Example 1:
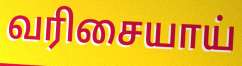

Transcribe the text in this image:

வரிசையாய்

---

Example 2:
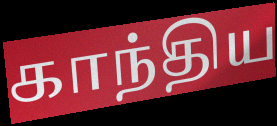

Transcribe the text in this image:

காந்திய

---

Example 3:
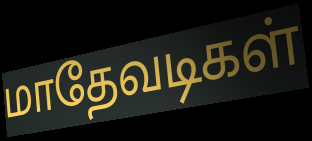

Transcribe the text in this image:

மாதேவடிகள்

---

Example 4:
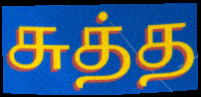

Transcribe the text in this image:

சுத்த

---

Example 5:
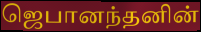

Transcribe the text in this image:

ஜெபானந்தனின்